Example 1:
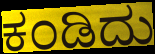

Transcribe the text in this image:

ಕಂಡಿದು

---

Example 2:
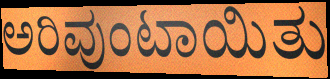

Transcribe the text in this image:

ಅರಿವುಂಟಾಯಿತು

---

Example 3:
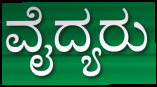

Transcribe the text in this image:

ವೈದ್ಯರು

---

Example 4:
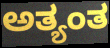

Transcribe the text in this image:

ಅತ್ಯಂತ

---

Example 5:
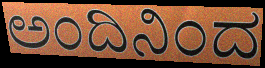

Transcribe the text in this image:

ಅಂದಿನಿಂದ